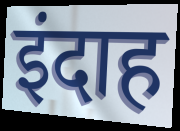
इंदाह